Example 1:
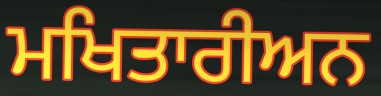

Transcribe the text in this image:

ਮਖਿਤਾਰੀਅਨ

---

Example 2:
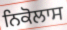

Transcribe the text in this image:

ਨਿਕੋਲਾਸ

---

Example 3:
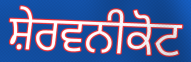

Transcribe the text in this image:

ਸ਼ੇਰਵਨੀਕੋਟ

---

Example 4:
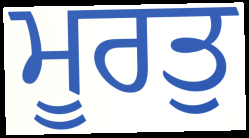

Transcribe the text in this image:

ਮੂਰਤੁ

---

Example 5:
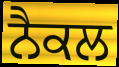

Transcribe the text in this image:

ਨੈਕਲ